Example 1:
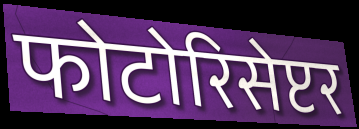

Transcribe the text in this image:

फोटोरिसेप्टर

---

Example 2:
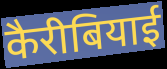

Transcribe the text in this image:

कैरीबियाई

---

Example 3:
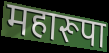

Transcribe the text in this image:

महारूपा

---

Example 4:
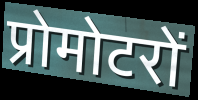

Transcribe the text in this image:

प्रोमोटरों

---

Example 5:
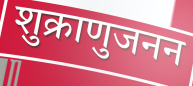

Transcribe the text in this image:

शुक्राणुजनन